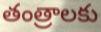
తంత్రాలకు